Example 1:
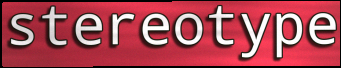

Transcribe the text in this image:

stereotype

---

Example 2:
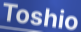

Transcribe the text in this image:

Toshio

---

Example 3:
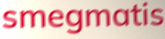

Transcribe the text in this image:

smegmatis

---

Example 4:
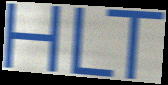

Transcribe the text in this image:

HLT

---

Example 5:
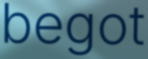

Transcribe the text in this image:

begot